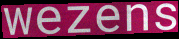
wezens